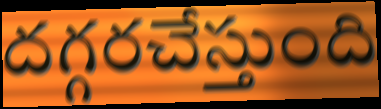
దగ్గరచేస్తుంది